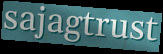
sajagtrust